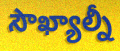
సౌఖ్యాల్నీ